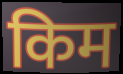
किम